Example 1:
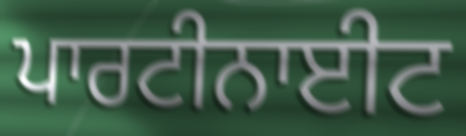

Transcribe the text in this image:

ਪਾਰਟੀਨਾਈਟ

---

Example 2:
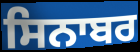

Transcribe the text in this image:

ਸਿਨਾਬਰ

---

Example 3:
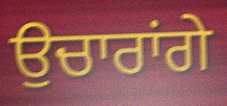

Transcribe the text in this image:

ਉਚਾਰਾਂਗੇ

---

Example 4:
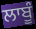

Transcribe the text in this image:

ਲਾਬੂੰ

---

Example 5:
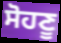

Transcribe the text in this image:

ਸੋਹਣੂ